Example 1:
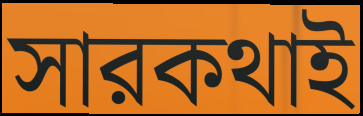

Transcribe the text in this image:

সারকথাই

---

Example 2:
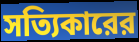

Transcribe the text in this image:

সত্যিকারের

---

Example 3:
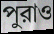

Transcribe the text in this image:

পুরাও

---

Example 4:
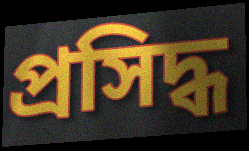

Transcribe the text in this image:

প্রসিদ্ধ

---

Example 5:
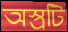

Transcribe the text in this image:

অস্ত্রটি